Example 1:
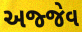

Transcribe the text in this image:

અજ્જેવ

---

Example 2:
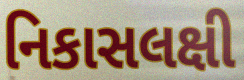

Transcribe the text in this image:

નિકાસલક્ષી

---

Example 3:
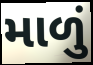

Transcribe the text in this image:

માળું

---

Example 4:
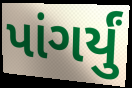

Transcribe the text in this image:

પાંગર્યું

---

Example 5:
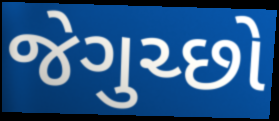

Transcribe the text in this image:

જેગુચ્છો